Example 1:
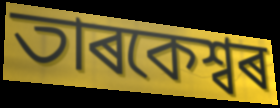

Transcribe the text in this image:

তাৰকেশ্বৰ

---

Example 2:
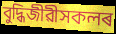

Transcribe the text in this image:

বুদ্ধিজীৱীসকলৰ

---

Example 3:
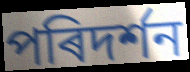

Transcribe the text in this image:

পৰিদৰ্শন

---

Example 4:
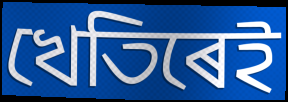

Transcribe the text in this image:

খেতিৰেই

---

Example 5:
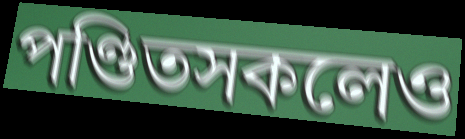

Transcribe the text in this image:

পণ্ডিতসকলেও